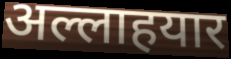
अल्लाहयार